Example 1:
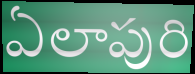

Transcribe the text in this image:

ఏలాపురి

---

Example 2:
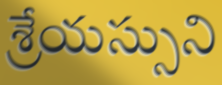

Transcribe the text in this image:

శ్రేయస్సుని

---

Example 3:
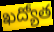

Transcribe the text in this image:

ఖద్యోత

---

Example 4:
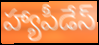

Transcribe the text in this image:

హ్యాపీడేస్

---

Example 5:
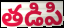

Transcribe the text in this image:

తడిపి